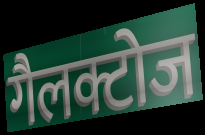
गैलक्टोज